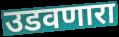
उडवणारा